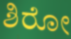
ಶಿರೋ